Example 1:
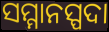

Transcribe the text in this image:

ସମ୍ମାନସ୍ପଦା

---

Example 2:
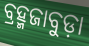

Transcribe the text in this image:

ବ୍ରହ୍ମଜାବୁଡ଼ା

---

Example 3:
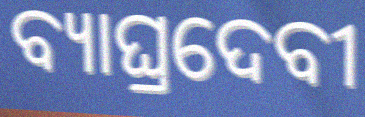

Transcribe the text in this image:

ବ୍ୟାଘ୍ରଦେବୀ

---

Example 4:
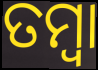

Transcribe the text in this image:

ତମ୍ୱା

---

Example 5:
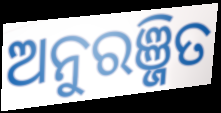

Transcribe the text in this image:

ଅନୁରଞ୍ଜିତ